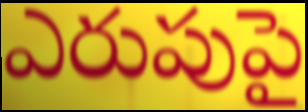
ఎరుపుపై